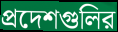
প্রদেশগুলির